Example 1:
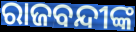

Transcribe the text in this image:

ରାଜବନ୍ଦୀଙ୍କ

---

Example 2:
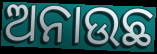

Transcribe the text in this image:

ଅନାଉଛ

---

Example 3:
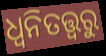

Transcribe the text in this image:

ଧ୍ୱନିତତ୍ତ୍ୱରୁ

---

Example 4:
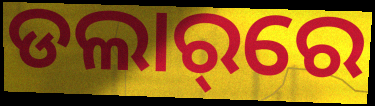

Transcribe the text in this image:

ଡଲାର୍‌ରେ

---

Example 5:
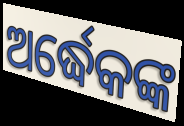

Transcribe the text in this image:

ଅର୍ଦ୍ଧେକଙ୍କ